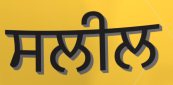
ਸਲੀਲ